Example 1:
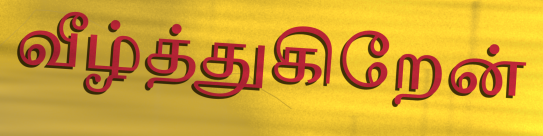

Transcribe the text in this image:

வீழ்த்துகிறேன்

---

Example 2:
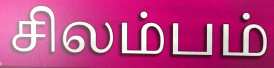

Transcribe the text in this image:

சிலம்பம்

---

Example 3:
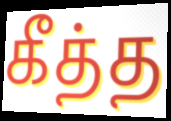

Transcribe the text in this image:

கீத்த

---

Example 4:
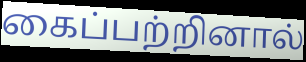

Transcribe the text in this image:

கைப்பற்றினால்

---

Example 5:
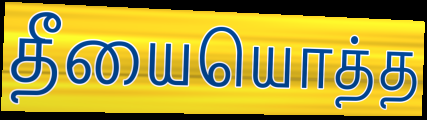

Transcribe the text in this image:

தீயையொத்த